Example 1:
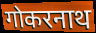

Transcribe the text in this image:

गोकरनाथ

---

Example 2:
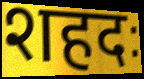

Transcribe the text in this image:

शहदः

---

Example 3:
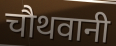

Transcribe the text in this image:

चौथवानी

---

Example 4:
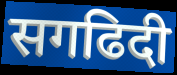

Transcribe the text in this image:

सगढिदी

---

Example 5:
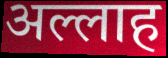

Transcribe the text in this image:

अल्लाह